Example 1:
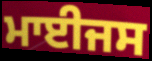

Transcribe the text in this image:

ਮਾਈਜਸ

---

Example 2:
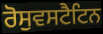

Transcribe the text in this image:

ਰੋਸੁਵਸਟੈਟਿਨ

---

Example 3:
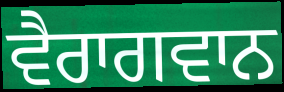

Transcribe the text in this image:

ਵੈਰਾਗਵਾਨ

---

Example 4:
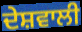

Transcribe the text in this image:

ਦੇਸ਼ਵਾਲੀ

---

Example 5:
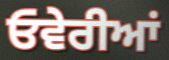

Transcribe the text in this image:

ਓਵੇਰੀਆਂ